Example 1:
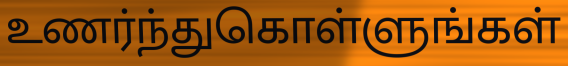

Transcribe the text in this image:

உணர்ந்துகொள்ளுங்கள்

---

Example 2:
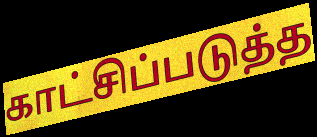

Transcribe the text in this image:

காட்சிப்படுத்த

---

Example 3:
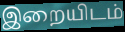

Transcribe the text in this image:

இறையிடம்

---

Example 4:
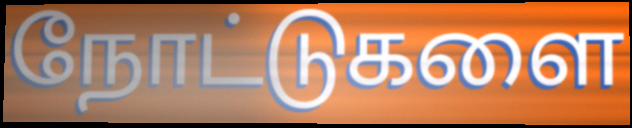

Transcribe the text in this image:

நோட்டுகளை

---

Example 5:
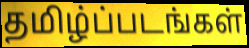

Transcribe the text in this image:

தமிழ்ப்படங்கள்